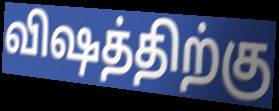
விஷத்திற்கு